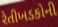
રેતીખડકોની